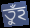
তুঁহ